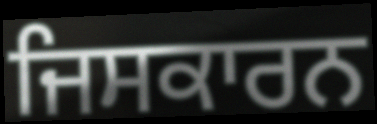
ਜਿਸਕਾਰਨ